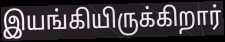
இயங்கியிருக்கிறார்